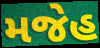
મજેહ